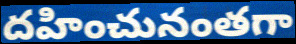
దహించునంతగా